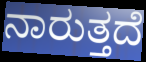
ನಾರುತ್ತದೆ